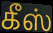
கீஸ்